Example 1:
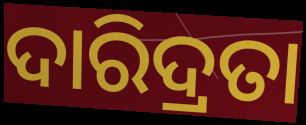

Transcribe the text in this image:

ଦାରିଦ୍ରତା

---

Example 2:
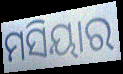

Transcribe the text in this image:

ମସିୟାର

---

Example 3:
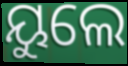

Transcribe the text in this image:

ୟୁଲେ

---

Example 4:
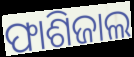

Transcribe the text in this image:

ଫାଶିଜାଲ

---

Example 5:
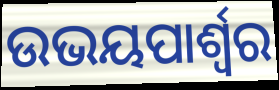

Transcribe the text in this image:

ଉଭୟପାର୍ଶ୍ୱର